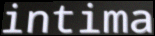
intima